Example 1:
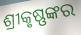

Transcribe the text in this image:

ଶ୍ରୀକୃଷ୍ଣଙ୍କର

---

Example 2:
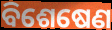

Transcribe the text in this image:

ବିଶେଷେଣ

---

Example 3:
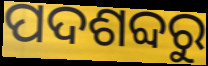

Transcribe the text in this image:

ପଦଶବ୍ଦରୁ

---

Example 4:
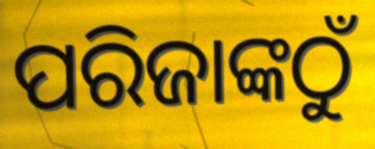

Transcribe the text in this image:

ପରିଜାଙ୍କଠୁଁ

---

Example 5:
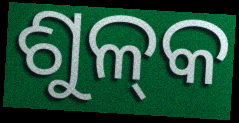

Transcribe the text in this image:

ଶୁଳ୍‌କ